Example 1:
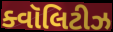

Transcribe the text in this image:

ક્વૉલિટીઝ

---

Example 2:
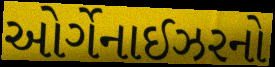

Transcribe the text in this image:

ઓર્ગેનાઈઝરનો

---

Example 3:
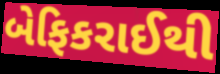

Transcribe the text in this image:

બેફિકરાઈથી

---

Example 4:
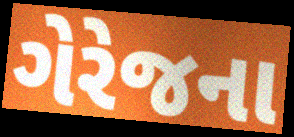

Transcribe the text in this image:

ગેરેજના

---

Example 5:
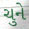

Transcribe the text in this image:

ચુને